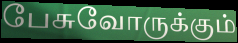
பேசுவோருக்கும்